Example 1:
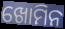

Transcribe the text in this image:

ଖୋମିନ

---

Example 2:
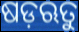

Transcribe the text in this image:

ଷଡ଼ଋତୁ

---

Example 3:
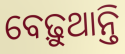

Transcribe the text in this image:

ବେଢ଼ୁଥାନ୍ତି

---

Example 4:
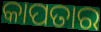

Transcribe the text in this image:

କାପତାର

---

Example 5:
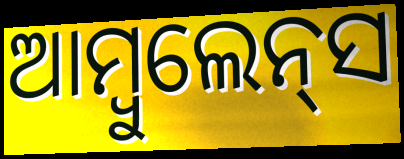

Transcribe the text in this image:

ଆମ୍ବୁଲେନ୍‍ସ